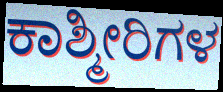
ಕಾಶ್ಮೀರಿಗಳ